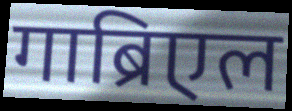
गाब्रिएल